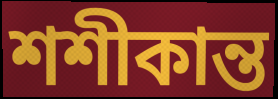
শশীকান্ত